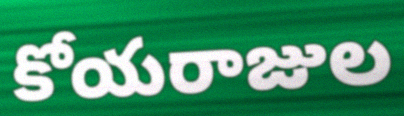
కోయరాజుల